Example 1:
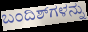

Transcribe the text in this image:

ಬಂದಿಶ್‌ಗಳನ್ನು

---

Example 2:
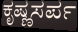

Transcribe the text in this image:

ಕೃಷ್ಣಸರ್ಪ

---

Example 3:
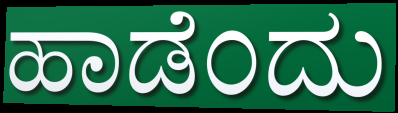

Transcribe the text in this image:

ಹಾಡೆಂದು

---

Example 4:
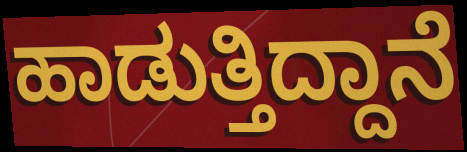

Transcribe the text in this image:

ಹಾಡುತ್ತಿದ್ದಾನೆ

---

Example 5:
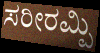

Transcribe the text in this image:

ಸರೀರಮ್ಪಿ